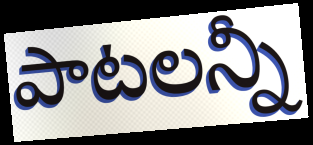
పాటలన్నీ